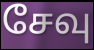
சேவு